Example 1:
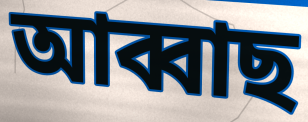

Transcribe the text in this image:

আব্বাছ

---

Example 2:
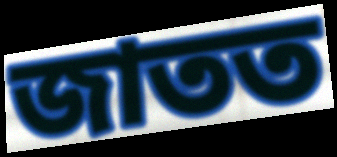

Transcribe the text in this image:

জাতত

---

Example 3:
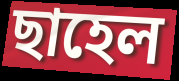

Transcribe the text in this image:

ছাহেল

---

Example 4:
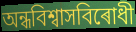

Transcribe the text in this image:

অন্ধবিশ্বাসবিৰোধী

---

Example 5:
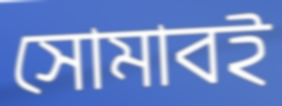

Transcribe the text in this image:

সোমাবই